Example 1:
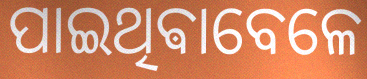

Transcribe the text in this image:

ପାଇଥିଵାବେଳେ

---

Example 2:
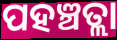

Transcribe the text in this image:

ପହଞ୍ଚତ୍ଲା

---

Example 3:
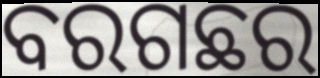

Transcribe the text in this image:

ବରଗଛର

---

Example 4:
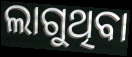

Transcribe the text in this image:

ଲାଗୁଥିବା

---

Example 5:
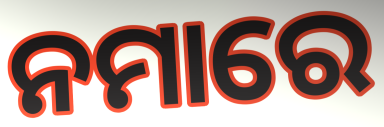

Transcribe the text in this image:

ନମାରେ